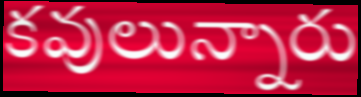
కవులున్నారు